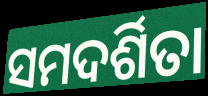
ସମଦର୍ଶିତା